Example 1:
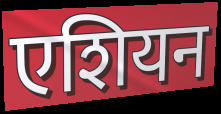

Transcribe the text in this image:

एशियन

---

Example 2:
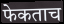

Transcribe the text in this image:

फेकताच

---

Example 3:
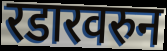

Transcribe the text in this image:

रडारवरुन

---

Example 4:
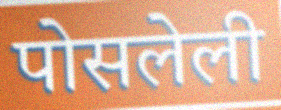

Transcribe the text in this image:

पोसलेली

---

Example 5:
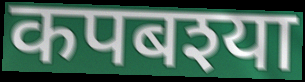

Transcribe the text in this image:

कपबश्या